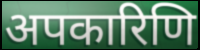
अपकारिणि